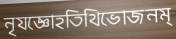
নৃযজ্ঞোহতিথিভোজনম্